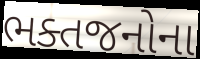
ભક્તજનોના